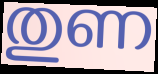
തുണ